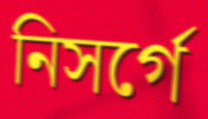
নিসর্গে